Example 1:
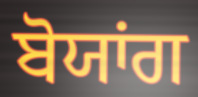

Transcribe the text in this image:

ਬੋਯਾਂਗ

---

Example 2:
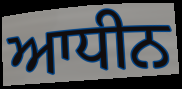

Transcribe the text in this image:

ਆਧੀਨ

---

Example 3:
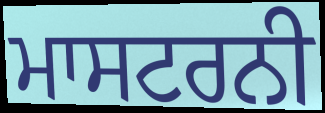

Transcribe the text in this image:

ਮਾਸਟਰਨੀ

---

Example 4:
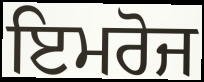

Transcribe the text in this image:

ਇਮਰੋਜ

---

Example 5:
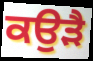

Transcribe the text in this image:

ਕਉੜੈ